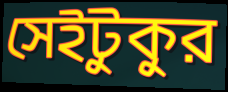
সেইটুকুর